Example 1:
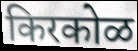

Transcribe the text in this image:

किरकोळ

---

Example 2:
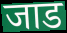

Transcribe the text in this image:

जाड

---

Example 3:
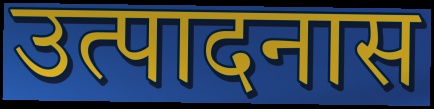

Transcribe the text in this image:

उत्पादनास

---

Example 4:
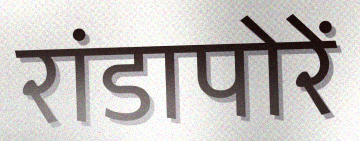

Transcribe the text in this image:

रांडापोरें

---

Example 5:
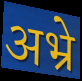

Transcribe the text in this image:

अभ्रे